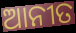
ଆନୀତ